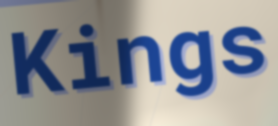
Kings